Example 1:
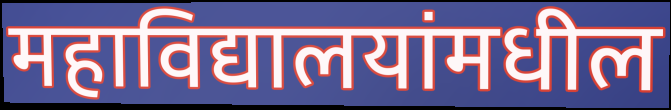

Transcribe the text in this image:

महाविद्यालयांमधील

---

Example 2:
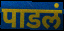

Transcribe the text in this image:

पाडलं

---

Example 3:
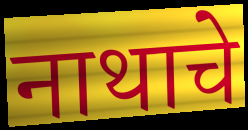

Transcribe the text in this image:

नाथाचे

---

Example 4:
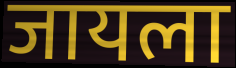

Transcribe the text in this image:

जायला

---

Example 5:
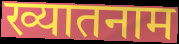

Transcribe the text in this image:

ख्यातनाम